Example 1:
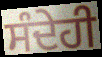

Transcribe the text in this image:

ਸੰਦੇਹੀ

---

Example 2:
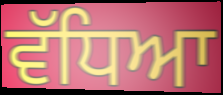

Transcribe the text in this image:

ਵੱਧਿਆ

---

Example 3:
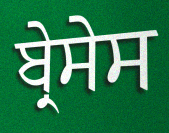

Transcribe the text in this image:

ਬ੍ਰੇਸੇਸ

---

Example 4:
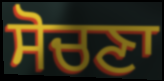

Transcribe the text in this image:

ਸੋਚਣਾ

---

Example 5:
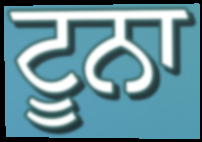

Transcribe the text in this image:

ਟੂਨਾ